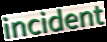
incident